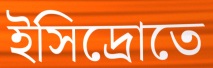
ইসিদ্রোতে